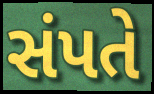
સંપતે